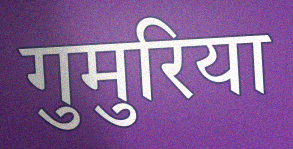
गुमुरिया